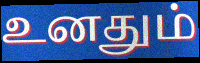
உனதும்